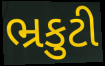
ભ્રકુટી